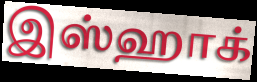
இஸ்ஹாக்